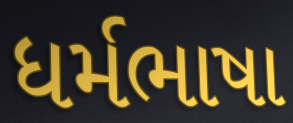
ધર્મભાષા